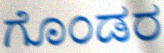
ಗೊಂಡರ